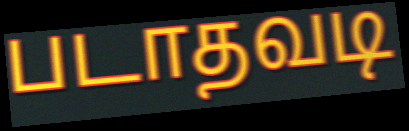
படாதவடி